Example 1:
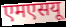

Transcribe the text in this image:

एमएसयू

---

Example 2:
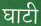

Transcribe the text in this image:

घाटी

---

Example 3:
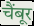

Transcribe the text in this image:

चैंबूर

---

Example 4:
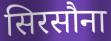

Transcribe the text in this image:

सिरसौना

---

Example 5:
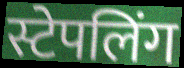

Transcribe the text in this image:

स्टेपलिंग